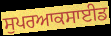
ਸੁਪਰਆਕਸਾਈਡ